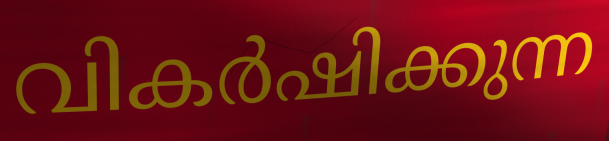
വികർഷിക്കുന്ന